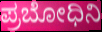
ಪ್ರಬೋಧಿನಿ